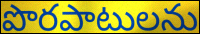
పొరపాటులను